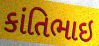
કાંતિભાઇ